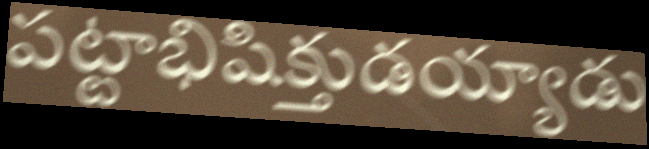
పట్టాభిషిక్తుడయ్యాడు